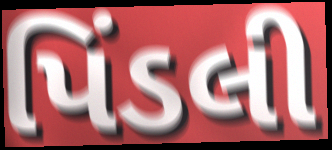
પિંડલી